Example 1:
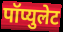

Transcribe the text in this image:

पॉप्युलेट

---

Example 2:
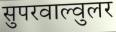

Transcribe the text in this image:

सुपरवाल्वुलर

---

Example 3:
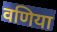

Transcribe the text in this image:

वणिया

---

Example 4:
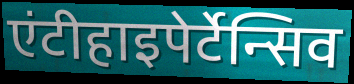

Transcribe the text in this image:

एंटीहाइपेर्टेन्सिव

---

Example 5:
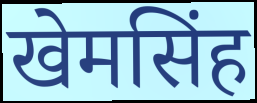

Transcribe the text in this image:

खेमसिंह